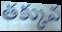
తక్కువ